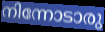
നിന്നോടാരു